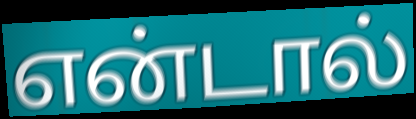
என்டால்